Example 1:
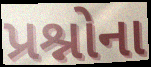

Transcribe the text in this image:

પ્રશ્નોના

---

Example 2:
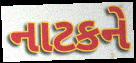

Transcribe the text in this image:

નાટકને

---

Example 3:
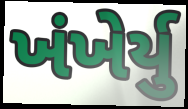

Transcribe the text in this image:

ખંખેર્યુ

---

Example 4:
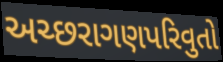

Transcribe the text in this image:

અચ્છરાગણપરિવુતો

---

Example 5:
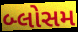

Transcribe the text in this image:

બ્લોસમ